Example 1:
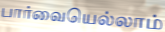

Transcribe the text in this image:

பார்வையெல்லாம்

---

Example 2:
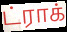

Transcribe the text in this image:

ட்ராக்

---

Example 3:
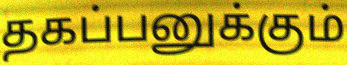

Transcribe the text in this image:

தகப்பனுக்கும்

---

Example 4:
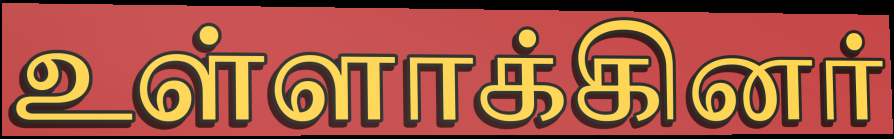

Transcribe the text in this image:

உள்ளாக்கினர்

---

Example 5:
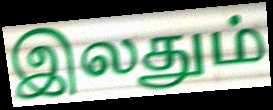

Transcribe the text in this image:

இலதும்